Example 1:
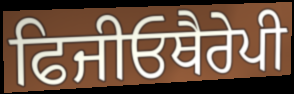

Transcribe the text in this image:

ਫਿਜੀਓਥੈਰੇਪੀ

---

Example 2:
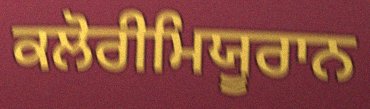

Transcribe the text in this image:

ਕਲੋਰੀਮਿਯੂਰਾਨ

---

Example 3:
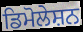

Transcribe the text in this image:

ਡਿਮੋਲੇਸ਼ਨ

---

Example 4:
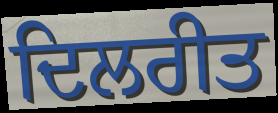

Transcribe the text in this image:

ਦਿਲਰੀਤ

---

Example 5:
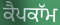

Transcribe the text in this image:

ਕੈਪਕਾੱਮ